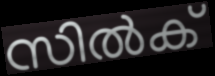
സിൽക്